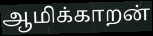
ஆமிக்காறன்